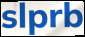
slprb